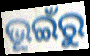
ଭୂଇଁରୁ